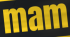
mam